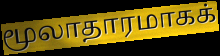
மூலாதாரமாகக்